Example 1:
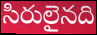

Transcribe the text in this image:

సిరులైనది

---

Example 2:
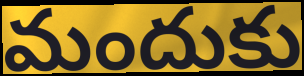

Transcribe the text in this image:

మందుకు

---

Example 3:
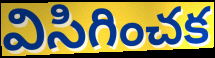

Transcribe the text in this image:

విసిగించక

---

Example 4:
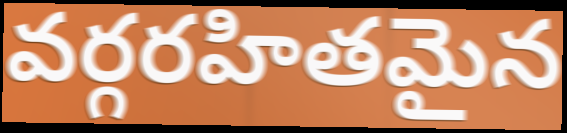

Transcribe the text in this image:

వర్గరహితమైన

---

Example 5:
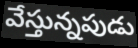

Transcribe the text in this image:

వేస్తున్నపుడు